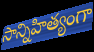
సాన్నిహిత్యంగా